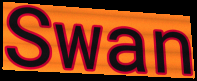
Swan